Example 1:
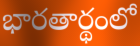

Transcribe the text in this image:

భారతార్థంలో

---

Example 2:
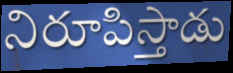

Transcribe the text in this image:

నిరూపిస్తాడు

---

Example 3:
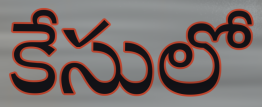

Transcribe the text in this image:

కేసులో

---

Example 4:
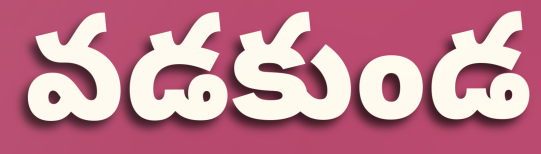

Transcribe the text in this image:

వడకుండ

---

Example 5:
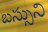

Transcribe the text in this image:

బస్సుని